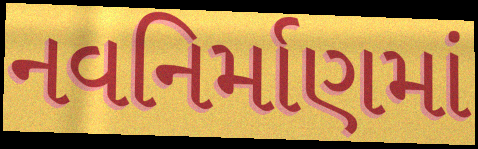
નવનિર્માણમાં